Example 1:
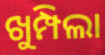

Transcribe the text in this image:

ଖୁମ୍ପିଲା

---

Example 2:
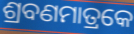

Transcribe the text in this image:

ଶ୍ରବଣମାତ୍ରକେ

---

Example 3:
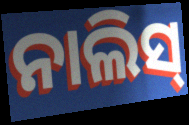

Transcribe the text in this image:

ନାଲିସ୍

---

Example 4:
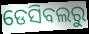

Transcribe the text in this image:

ଡେସିବଲରୁ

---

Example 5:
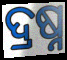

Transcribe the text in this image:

ଦ୍ରଷ୍ନ